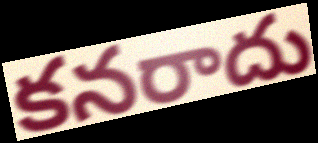
కనరాదు